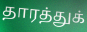
தாரத்துக்